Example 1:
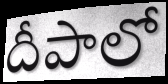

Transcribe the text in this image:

దీపాలో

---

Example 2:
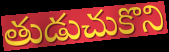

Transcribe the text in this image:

తుడుచుకొని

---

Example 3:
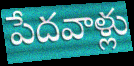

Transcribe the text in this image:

పేదవాళ్లు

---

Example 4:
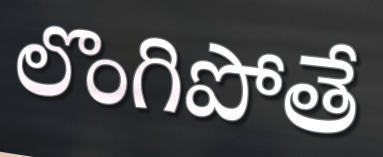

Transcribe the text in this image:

లొంగిపోతే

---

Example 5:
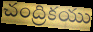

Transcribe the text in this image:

చంద్రికయు